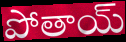
పోతాయ్